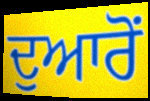
ਦੁਆਰੋਂ